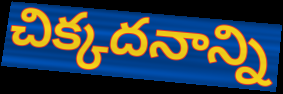
చిక్కదనాన్ని